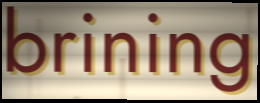
brining